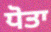
ਧੋਤਾ